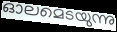
ഓലമെടയുന്നു